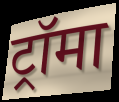
ट्रॉमा